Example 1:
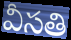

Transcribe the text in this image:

వీసతి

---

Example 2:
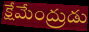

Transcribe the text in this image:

క్షేమేంద్రుడు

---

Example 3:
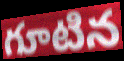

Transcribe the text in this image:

గూటిన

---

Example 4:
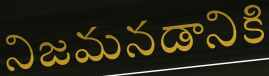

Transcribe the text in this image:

నిజమనడానికి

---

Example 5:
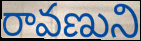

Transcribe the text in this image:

రావణుని